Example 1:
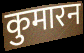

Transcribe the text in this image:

कुमारन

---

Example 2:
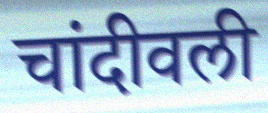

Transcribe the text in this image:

चांदीवली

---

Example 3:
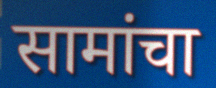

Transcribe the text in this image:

सामांचा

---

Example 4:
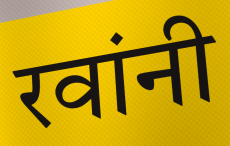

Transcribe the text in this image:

रवांनी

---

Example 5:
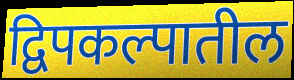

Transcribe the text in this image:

द्विपकल्पातील